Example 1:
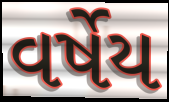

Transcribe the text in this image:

વર્ષેય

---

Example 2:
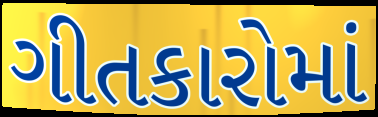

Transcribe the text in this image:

ગીતકારોમાં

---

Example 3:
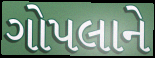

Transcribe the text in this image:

ગોપલાને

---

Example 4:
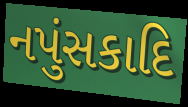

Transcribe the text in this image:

નપુંસકાદિ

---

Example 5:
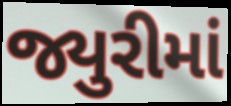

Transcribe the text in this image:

જ્યુરીમાં